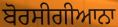
ਬੋਰਸੀਗੀਆਨਾ